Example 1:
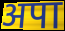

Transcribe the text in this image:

अपा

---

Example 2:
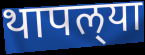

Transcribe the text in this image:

थापल्या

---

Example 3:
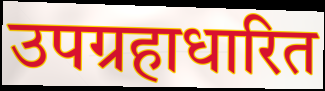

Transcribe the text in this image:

उपग्रहाधारित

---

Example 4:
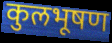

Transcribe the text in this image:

कुलभूषण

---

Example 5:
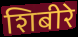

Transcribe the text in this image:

शिबीरे